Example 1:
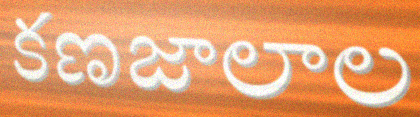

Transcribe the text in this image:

కణజాలాల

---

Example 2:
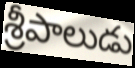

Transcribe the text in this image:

శ్రీపాలుడు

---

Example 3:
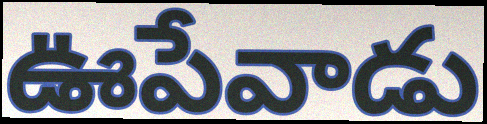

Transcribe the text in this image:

ఊపేవాడు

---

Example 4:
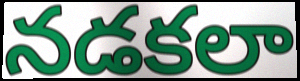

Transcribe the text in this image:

నడకలా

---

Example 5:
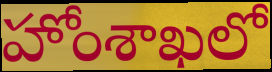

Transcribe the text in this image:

హోంశాఖలో